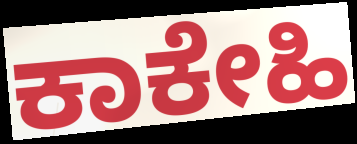
ಕಾಕೇಹಿ